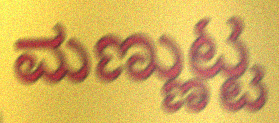
ಮಣ್ಣುಟ್ಟ